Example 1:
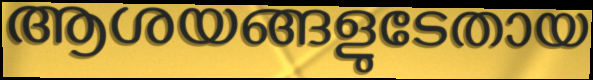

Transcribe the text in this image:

ആശയങ്ങളുടേതായ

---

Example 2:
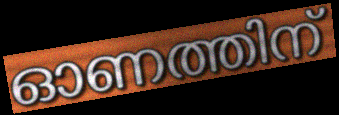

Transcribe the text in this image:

ഓണത്തിന്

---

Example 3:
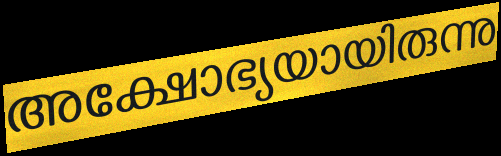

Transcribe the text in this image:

അക്ഷോഭ്യയായിരുന്നു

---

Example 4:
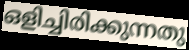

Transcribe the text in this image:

ഒളിച്ചിരിക്കുന്നതു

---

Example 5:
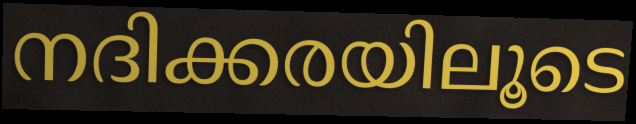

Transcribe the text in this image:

നദിക്കരയിലൂടെ